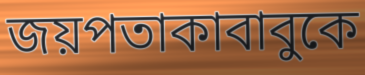
জয়পতাকাবাবুকে